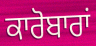
ਕਾਰੋਬਾਰਾਂ